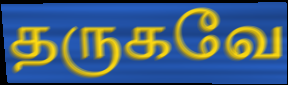
தருகவே